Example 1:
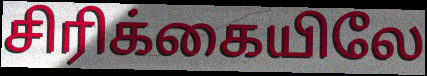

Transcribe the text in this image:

சிரிக்கையிலே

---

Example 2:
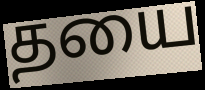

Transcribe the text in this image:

தயை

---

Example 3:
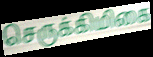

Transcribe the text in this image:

செருக்கிமிகை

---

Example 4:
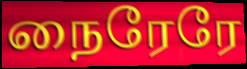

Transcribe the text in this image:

நைரேரே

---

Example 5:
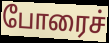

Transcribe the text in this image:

போரைச்